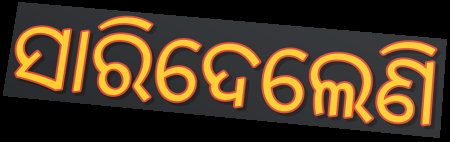
ସାରିଦେଲେଣି